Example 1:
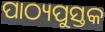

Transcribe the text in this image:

ପାଠ୍ୟପୁସ୍ତକ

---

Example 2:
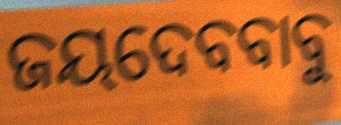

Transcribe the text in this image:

ଜୟଦେବବାବୁ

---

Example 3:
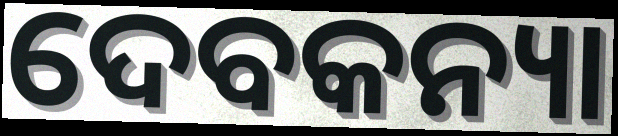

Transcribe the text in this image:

ଦେବକନ୍ୟା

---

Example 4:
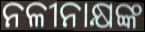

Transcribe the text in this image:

ନଳୀନାକ୍ଷଙ୍କ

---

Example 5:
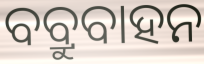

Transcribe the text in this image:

ବବ୍ରୁବାହନ